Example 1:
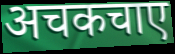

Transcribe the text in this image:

अचकचाए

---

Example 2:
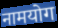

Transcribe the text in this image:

नामयोग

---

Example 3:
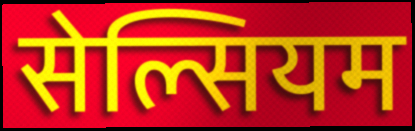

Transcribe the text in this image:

सेल्सियम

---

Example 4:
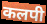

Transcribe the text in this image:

कलपी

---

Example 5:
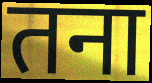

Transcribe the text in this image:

तना